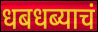
धबधब्याचं